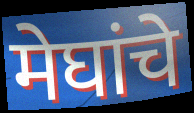
मेघांचे